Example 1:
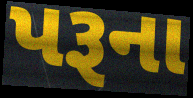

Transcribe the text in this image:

પરૂના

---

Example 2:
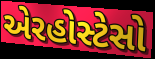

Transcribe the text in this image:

એરહોસ્ટેસો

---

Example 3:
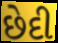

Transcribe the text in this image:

છેદી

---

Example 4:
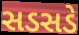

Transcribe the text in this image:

સડસડે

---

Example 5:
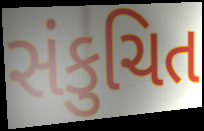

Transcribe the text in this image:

સંકુચિત